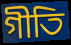
গীতি